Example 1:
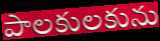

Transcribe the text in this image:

పాలకులకును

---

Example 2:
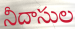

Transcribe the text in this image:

నీదాసుల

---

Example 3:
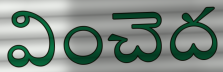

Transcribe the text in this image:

వించెద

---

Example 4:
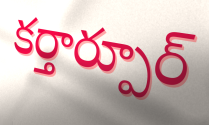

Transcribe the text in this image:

కర్తార్పూర్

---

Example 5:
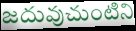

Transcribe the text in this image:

జదువుచుంటిని